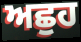
ਅਛੁਹ